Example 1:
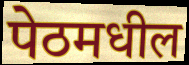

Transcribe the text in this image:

पेठमधील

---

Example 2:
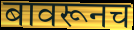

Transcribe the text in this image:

बावरूनच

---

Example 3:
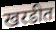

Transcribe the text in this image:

खरडीत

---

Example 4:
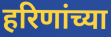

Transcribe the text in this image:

हरिणांच्या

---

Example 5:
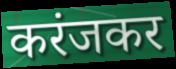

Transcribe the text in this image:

करंजकर